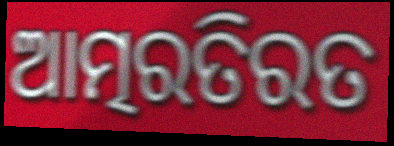
ଆତ୍ମରତିରତ